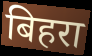
बिहरा